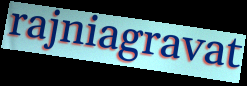
rajniagravat